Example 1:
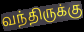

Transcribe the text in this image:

வந்திருக்கு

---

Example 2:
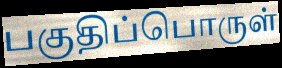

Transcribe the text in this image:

பகுதிப்பொருள்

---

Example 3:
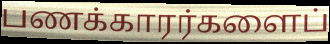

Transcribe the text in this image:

பணக்காரர்களைப்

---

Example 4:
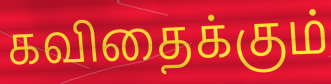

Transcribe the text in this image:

கவிதைக்கும்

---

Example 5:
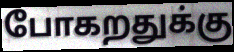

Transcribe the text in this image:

போகறதுக்கு